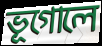
ভূগোলে